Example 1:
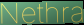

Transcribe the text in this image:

Nethra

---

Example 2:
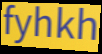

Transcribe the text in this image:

fyhkh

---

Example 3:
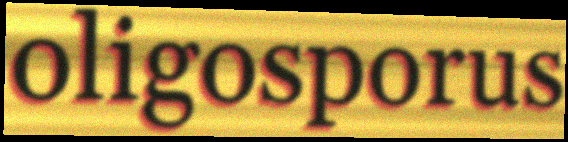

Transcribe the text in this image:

oligosporus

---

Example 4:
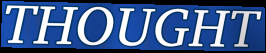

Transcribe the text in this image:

THOUGHT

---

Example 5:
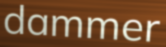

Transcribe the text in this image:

dammer